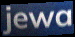
jewa